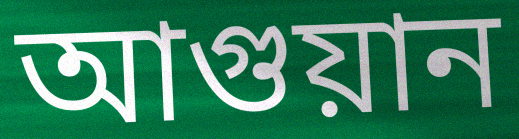
আগুয়ান